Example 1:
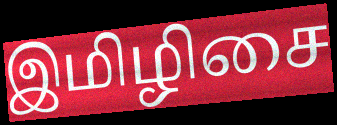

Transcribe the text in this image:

இமிழிசை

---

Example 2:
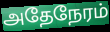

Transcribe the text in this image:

அதேநேரம்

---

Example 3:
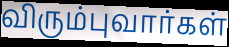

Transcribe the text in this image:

விரும்புவார்கள்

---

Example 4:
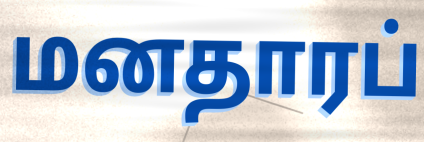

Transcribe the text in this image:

மனதாரப்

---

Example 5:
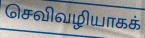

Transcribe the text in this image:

செவிவழியாகக்